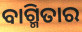
ବାଗ୍ମିତାର